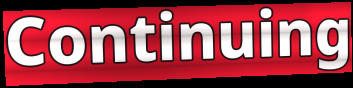
Continuing